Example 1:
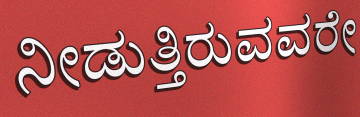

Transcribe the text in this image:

ನೀಡುತ್ತಿರುವವರೇ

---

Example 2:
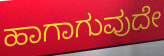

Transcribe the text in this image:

ಹಾಗಾಗುವುದೇ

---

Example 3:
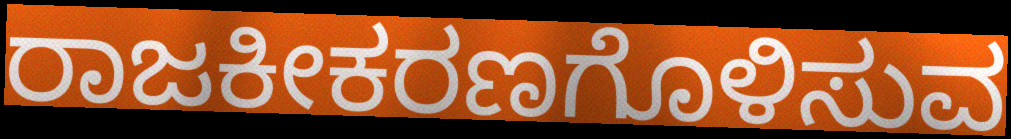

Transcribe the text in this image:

ರಾಜಕೀಕರಣಗೊಳಿಸುವ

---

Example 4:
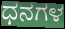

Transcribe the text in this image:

ಧನಗಳ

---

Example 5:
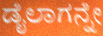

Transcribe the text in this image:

ಡೈಲಾಗನ್ನೇ